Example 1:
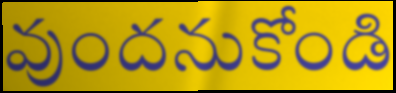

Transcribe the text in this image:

వుందనుకోండి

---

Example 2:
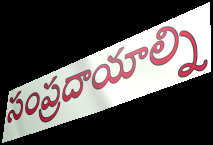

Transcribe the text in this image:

సంప్రదాయాల్ని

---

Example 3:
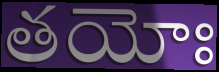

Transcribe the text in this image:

తయోః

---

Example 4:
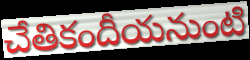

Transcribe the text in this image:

చేతికందీయనుంటి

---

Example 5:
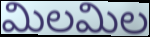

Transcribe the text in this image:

మిలమిల